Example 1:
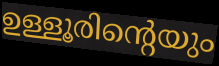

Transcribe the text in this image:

ഉള്ളൂരിന്റെയും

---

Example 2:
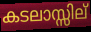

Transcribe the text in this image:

കടലാസ്സില്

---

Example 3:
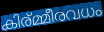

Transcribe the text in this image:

കിര്മ്മീരവധം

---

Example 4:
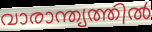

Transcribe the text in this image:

വാരാന്ത്യത്തിൽ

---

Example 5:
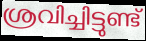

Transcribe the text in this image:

ശ്രവിച്ചിട്ടുണ്ട്